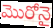
మొరోనై